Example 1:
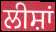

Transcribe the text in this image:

ਲੀਸ਼ਾਂ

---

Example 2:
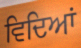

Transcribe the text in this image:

ਵਿਦਿਆਂ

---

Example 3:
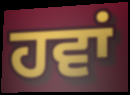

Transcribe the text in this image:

ਹਵਾਂ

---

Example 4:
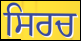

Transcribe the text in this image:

ਸਿਰਚ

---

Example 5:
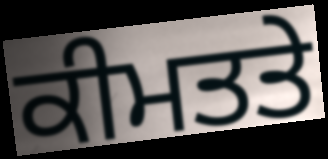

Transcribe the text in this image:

ਕੀਮਤਤੇ